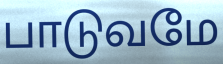
பாடுவமே